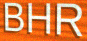
BHR